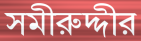
সমীরুদ্দীর